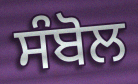
ਸੰਬੋਲ